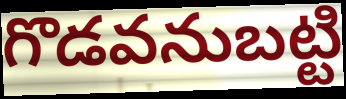
గొడవనుబట్టి